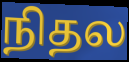
நிதல